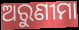
ଅରୁଣୀମା